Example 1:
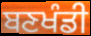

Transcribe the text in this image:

ਬਣਖੰਡੀ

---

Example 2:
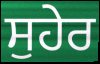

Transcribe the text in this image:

ਸੁਹੇਰ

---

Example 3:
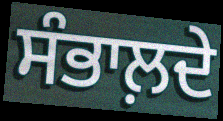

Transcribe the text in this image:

ਸੰਭਾਲ਼ਦੇ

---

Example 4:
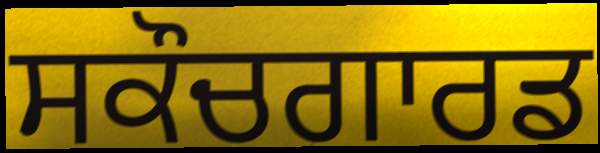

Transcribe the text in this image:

ਸਕੌਚਗਾਰਡ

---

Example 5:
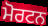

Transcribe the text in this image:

ਮੋਰਟਨ